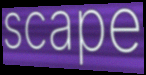
scape